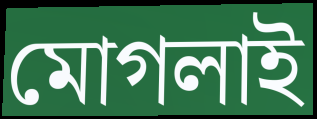
মোগলাই